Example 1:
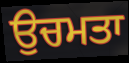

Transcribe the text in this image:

ਉਚਮਤਾ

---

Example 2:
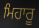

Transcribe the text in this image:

ਮਿਹਾਰੂ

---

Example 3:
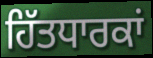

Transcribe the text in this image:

ਹਿੱਤਧਾਰਕਾਂ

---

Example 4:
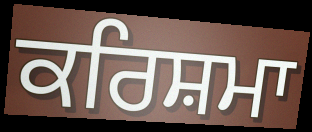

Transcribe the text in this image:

ਕਰਿਸ਼ਮਾ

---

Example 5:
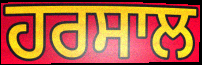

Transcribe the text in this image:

ਹਰਸਾਲ